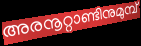
അരനൂറ്റാണ്ടിനുമുമ്പ്